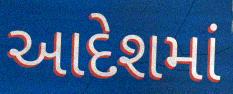
આદેશમાં